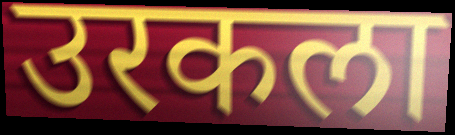
उरकला